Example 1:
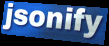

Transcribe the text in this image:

jsonify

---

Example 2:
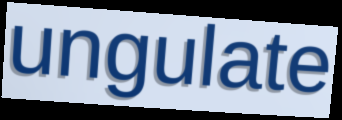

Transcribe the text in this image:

ungulate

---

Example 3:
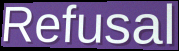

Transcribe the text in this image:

Refusal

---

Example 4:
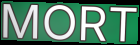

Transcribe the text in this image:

MORT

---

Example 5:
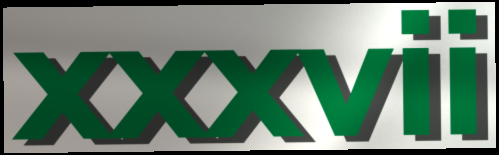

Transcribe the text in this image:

xxxvii